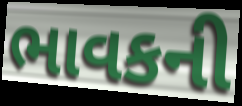
ભાવકની